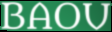
BAOU